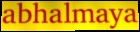
abhalmaya